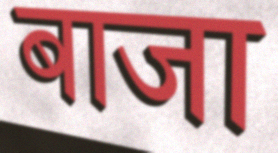
बाजा